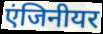
एंजिनीयर